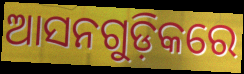
ଆସନଗୁଡ଼ିକରେ